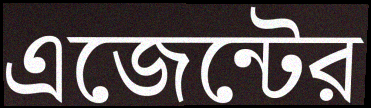
এজেন্টের